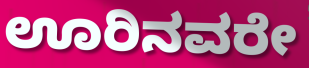
ಊರಿನವರೇ